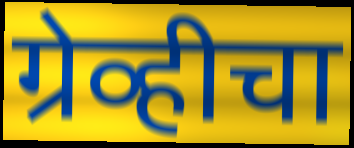
ग्रेव्हीचा